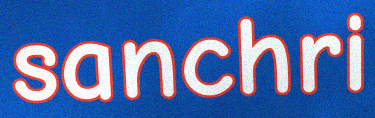
sanchri